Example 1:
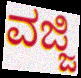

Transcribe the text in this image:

ವಜ್ಜಿ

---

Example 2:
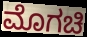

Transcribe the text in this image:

ಮೊಗಚಿ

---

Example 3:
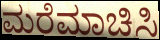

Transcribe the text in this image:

ಮರೆಮಾಚಿಸಿ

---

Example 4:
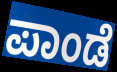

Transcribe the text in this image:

ಪಾಂಡೆ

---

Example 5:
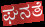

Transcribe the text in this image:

ಘನತೆ